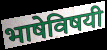
भाषेविषयी